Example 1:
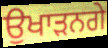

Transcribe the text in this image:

ਉਖਾੜਨਗੇ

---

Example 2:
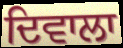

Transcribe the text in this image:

ਦਿਵਾਲਾ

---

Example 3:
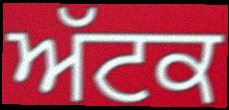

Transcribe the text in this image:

ਅੱਟਕ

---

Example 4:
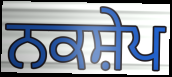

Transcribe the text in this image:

ਨਕਸ਼ੇਪ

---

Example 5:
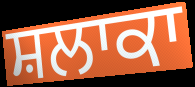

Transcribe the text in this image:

ਸ਼ਲਾਕਾ